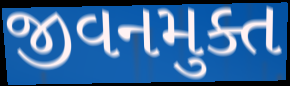
જીવનમુક્ત